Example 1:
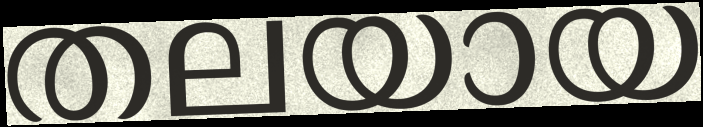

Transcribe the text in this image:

തലയായ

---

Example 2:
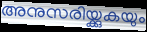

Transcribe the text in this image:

അനുസരിയ്ക്കുകയും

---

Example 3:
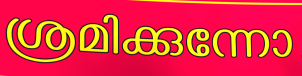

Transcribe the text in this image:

ശ്രമിക്കുന്നോ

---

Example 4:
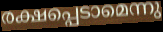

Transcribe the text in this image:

രക്ഷപ്പെടാമെന്നു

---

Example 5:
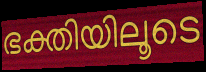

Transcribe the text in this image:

ഭക്തിയിലൂടെ